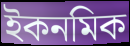
ইকনমিক